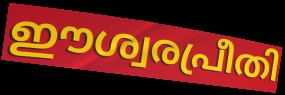
ഈശ്വരപ്രീതി